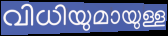
വിധിയുമായുള്ള